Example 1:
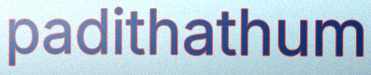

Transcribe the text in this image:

padithathum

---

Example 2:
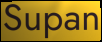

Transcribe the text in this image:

Supan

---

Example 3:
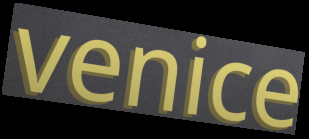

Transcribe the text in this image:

venice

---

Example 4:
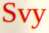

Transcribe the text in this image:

Svy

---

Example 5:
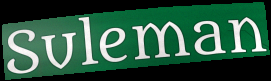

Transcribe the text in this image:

Suleman